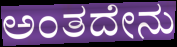
ಅಂತದೇನು